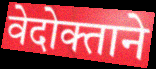
वेदोक्ताने